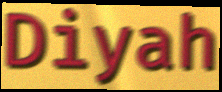
Diyah